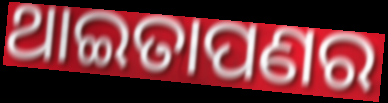
ଥାଇତାପଣର